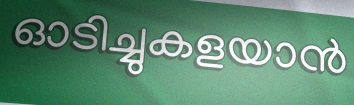
ഓടിച്ചുകളയാൻ